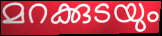
മറക്കുടയും